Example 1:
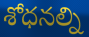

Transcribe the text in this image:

శోధనల్ని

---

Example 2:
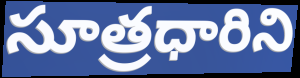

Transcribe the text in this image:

సూత్రధారిని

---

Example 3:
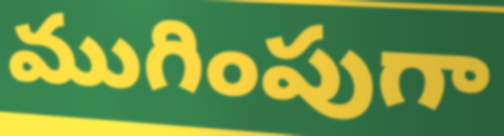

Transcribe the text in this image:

ముగింపుగా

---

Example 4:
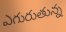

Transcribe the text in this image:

ఎగురుతున్న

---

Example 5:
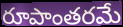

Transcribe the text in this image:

రూపాంతరమే